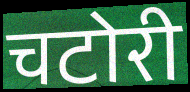
चटोरी